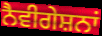
ਨੈਵੀਗੇਸ਼ਨਾਂ